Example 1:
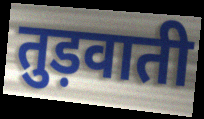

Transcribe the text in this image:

तुड़वाती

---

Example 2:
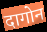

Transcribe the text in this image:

दागोन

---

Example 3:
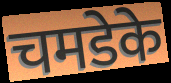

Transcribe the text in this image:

चमडेके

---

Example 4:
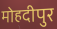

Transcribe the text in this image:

मोहदीपुर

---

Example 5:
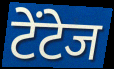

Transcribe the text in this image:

टेंटेज